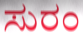
ಸುರಂ